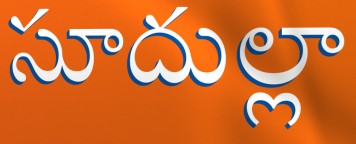
సూదుల్లా